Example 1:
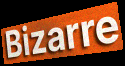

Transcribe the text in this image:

Bizarre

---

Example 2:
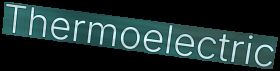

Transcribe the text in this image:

Thermoelectric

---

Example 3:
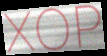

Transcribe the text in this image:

XOP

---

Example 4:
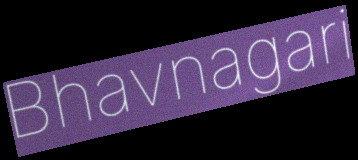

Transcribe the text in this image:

Bhavnagari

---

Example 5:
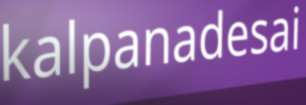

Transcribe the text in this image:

kalpanadesai